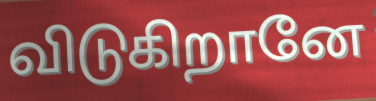
விடுகிறானே